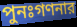
পুনঃগণনার